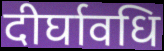
दीर्घावधि